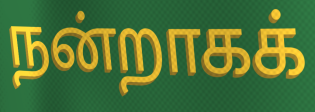
நன்றாகக்